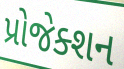
પ્રોજેક્શન